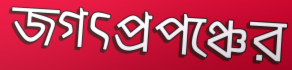
জগৎপ্রপঞ্চের